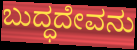
ಬುದ್ಧದೇವನು